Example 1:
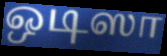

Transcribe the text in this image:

ஒடிஸா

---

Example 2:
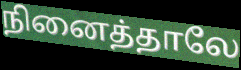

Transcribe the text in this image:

நினைத்தாலே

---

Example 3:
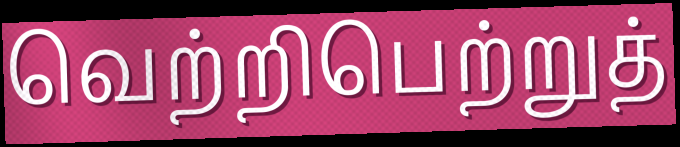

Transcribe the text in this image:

வெற்றிபெற்றுத்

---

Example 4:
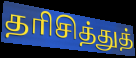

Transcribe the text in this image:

தரிசித்துத்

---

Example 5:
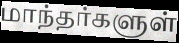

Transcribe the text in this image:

மாந்தர்களுள்